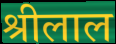
श्रीलाल